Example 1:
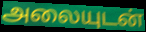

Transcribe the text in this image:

அலையுடன்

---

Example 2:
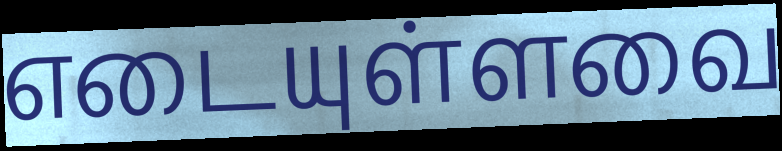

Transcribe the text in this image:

எடையுள்ளவை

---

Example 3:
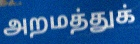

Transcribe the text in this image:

அறமத்துக்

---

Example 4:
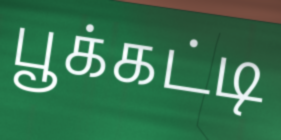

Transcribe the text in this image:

பூக்கட்டி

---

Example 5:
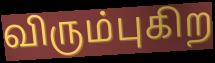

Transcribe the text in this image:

விரும்புகிற